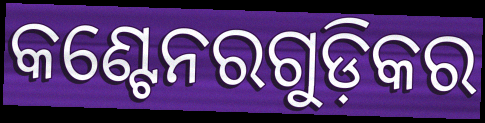
କଣ୍ଟେନରଗୁଡ଼ିକର